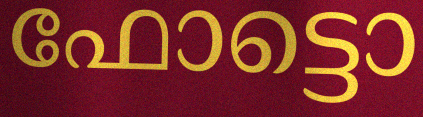
ഫോട്ടൊ